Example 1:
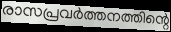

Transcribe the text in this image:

രാസപ്രവർത്തനത്തിന്റെ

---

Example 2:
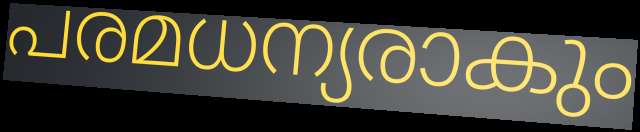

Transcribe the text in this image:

പരമധന്യരാകും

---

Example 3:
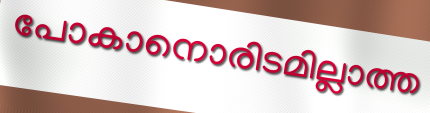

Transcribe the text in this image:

പോകാനൊരിടമില്ലാത്ത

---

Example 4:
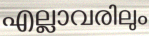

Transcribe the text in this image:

എല്ലാവരിലും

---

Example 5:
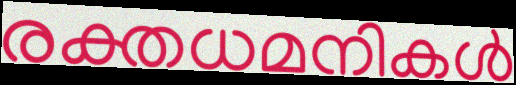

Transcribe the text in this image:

രക്തധമനികൾ